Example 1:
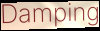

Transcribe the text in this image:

Damping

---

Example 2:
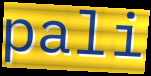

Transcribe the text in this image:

pali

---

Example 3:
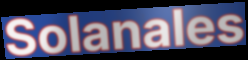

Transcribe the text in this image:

Solanales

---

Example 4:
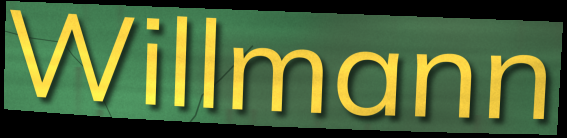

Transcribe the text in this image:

Willmann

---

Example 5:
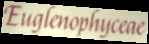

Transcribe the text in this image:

Euglenophyceae